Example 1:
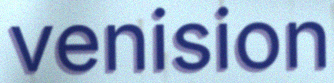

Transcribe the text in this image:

venision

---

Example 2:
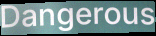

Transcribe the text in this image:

Dangerous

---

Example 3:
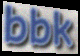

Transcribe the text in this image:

bbk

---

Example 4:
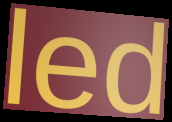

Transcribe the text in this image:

led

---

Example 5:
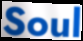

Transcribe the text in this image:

Soul